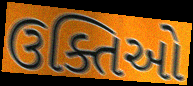
ઉક્તિઓ